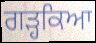
ਗੜ੍ਹਕਿਆ